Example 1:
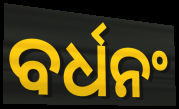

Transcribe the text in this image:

ବର୍ଧନଂ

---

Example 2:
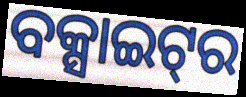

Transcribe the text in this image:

ବକ୍ସାଇଟ୍‌ର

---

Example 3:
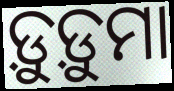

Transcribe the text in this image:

ଡ଼ୁଡ଼ୁମା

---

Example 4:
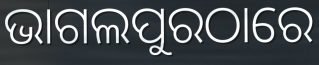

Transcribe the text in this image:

ଭାଗଲପୁରଠାରେ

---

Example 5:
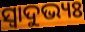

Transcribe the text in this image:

ସ୍ବାଦୁଭ୍ୟଃ